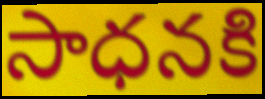
సాధనకి